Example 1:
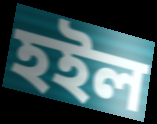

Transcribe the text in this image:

হইল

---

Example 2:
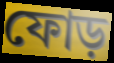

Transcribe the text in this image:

ফোড়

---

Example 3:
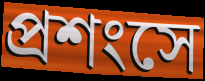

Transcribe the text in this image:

প্রশংসে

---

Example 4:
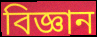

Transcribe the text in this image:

বিজ্ঞান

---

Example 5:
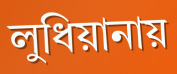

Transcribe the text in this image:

লুধিয়ানায়